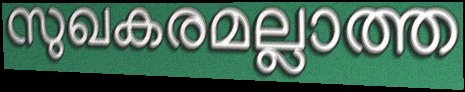
സുഖകരമല്ലാത്ത